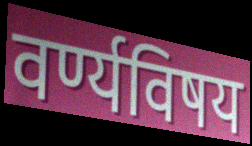
वर्ण्यविषय